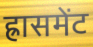
ह्रासमेंट